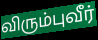
விரும்புவீர்